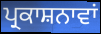
ਪ੍ਰਕਾਸ਼ਨਾਵਾਂ